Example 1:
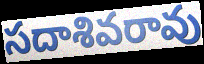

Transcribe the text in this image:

సదాశివరావు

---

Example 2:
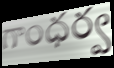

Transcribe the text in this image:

గాంధర్వ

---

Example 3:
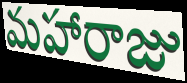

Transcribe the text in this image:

మహారాజు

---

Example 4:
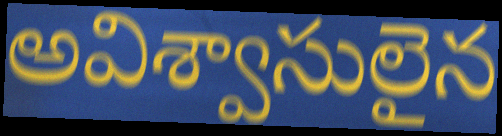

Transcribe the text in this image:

అవిశ్వాసులైన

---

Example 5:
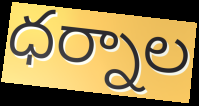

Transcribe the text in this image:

ధర్నాల